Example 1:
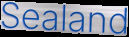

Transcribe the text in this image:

Sealand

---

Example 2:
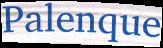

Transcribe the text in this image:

Palenque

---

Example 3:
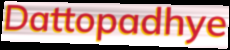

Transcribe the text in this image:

Dattopadhye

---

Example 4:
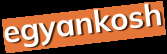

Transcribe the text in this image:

egyankosh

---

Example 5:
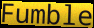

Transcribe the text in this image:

Fumble